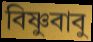
বিষ্ণুবাবু